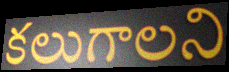
కలుగాలని